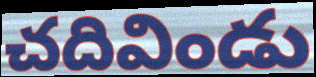
చదివిండు